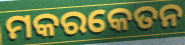
ମକରକେତନ